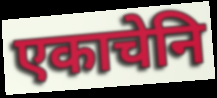
एकाचेनि